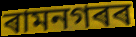
ৰামনগৰৰ